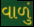
વાળું